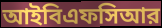
আইবিএফসিআর